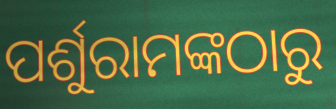
ପର୍ଶୁରାମଙ୍କଠାରୁ